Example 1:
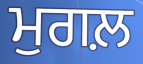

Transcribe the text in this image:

ਮੁਗਲ਼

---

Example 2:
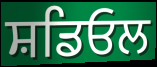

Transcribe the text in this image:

ਸ਼ਡਿਓਲ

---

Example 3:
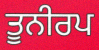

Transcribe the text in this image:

ਤੂਨੀਰਪ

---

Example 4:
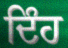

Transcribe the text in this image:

ਦਿੰਹ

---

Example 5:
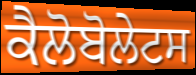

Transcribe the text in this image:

ਕੈਲੋਬੋਲੇਟਸ